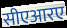
सीएआरए